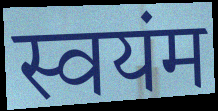
स्वयंम